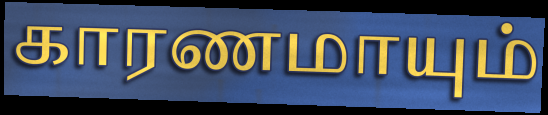
காரணமாயும்